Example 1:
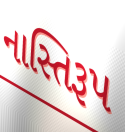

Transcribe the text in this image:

નાસ્તિરૂપ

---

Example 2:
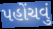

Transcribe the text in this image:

પહોંચવું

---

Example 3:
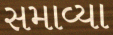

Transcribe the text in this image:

સમાવ્યા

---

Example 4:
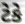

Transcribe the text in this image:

ટેકે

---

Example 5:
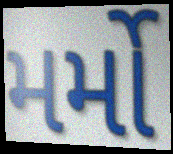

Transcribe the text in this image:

મર્મો